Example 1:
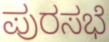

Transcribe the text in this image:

ಪುರಸಭೆ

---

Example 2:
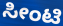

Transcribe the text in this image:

ಸೀಂಟಿ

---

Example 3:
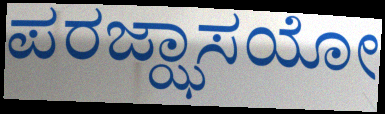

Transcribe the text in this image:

ಪರಜ್ಝಾಸಯೋ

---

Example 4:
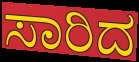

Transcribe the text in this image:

ಸಾರಿದ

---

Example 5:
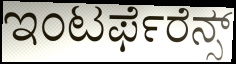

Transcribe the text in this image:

ಇಂಟರ್ಫೆರೆನ್ಸ್